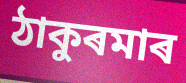
ঠাকুৰমাৰ